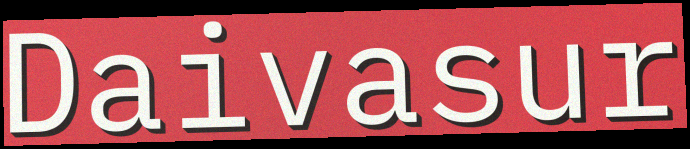
Daivasur